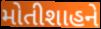
મોતીશાહને